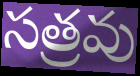
సత్రవు